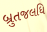
બ્રુતજલધિ